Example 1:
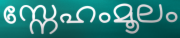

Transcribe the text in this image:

സ്നേഹംമൂലം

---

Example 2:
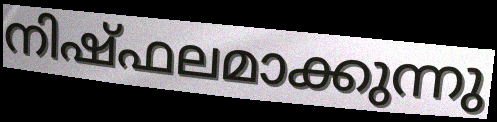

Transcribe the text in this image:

നിഷ്ഫലമാക്കുന്നു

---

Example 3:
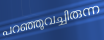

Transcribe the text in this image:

പറഞ്ഞുവച്ചിരുന്ന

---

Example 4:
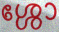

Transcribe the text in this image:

ശ്ശോ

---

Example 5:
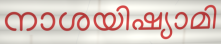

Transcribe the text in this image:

നാശയിഷ്യാമി